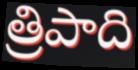
త్రిపాది